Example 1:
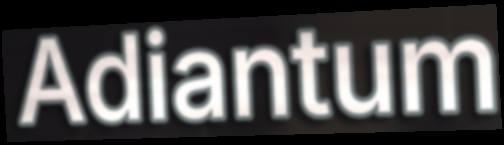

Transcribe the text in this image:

Adiantum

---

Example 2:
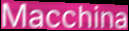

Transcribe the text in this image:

Macchina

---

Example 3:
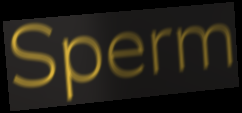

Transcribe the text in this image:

Sperm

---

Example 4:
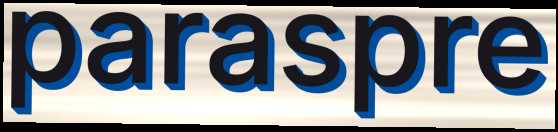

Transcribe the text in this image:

paraspre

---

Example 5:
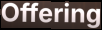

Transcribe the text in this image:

Offering